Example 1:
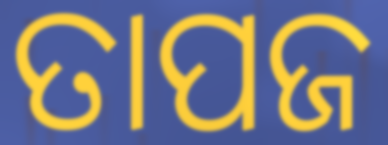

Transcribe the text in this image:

ତାପଜ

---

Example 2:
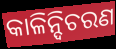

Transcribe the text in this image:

କାଳିନ୍ଦିଚରଣ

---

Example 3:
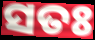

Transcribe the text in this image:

ସତଃ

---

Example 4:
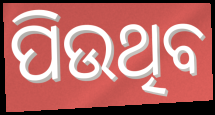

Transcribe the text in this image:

ପିଉଥିବ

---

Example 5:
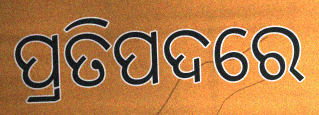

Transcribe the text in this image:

ପ୍ରତିପଦରେ